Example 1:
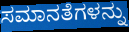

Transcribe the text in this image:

ಸಮಾನತೆಗಳನ್ನು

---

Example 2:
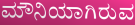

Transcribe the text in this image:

ಮೌನಿಯಾಗಿರುವ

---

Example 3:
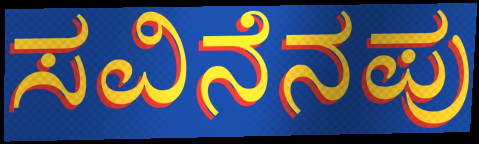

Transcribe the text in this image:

ಸವಿನೆನಪು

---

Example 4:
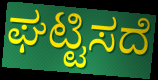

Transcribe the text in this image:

ಘಟ್ಟಿಸದೆ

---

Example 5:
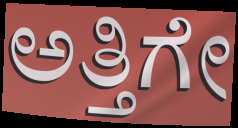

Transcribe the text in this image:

ಅತ್ತಿಗೇ